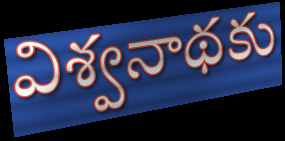
విశ్వనాథకు